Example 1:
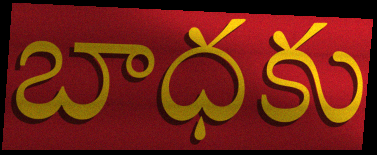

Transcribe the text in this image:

బాధకు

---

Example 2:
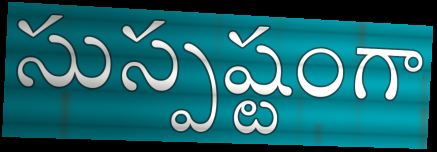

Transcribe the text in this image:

సుస్పష్టంగా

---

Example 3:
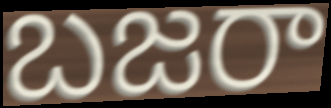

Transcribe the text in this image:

బజరా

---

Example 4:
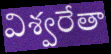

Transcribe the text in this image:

విశ్వరేతా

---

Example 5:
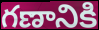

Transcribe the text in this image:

గణానికి